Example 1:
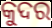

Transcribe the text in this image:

କୁଦର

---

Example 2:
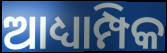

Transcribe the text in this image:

ଆଧ୍ୟାମ୍ପିକ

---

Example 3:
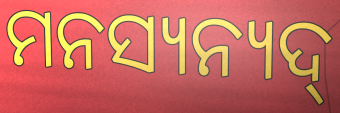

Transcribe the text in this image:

ମନସ୍ୟନ୍ୟଦ୍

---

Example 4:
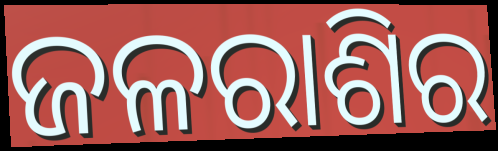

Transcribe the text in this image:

ଜଳରାଶିର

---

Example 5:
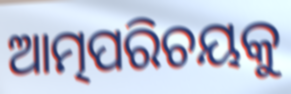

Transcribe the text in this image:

ଆତ୍ମପରିଚୟକୁ